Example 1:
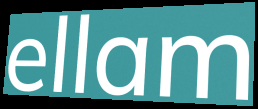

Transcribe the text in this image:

ellam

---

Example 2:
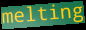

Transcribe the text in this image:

melting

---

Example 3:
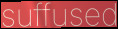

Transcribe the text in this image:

suffused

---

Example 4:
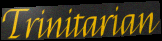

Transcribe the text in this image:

Trinitarian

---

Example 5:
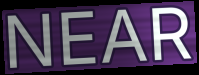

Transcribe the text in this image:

NEAR